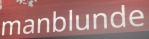
manblunde